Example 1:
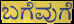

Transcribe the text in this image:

ಬಗೆವುಗೆ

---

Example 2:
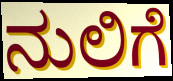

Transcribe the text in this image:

ನುಲಿಗೆ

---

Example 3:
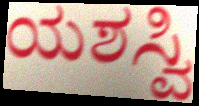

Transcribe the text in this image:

ಯಶಸ್ವಿ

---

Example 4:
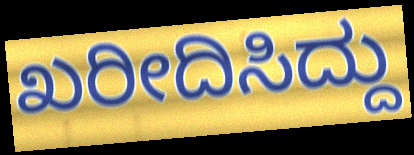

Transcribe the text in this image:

ಖರೀದಿಸಿದ್ದು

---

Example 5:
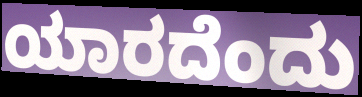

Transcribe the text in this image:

ಯಾರದೆಂದು